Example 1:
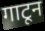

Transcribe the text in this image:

गाटून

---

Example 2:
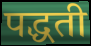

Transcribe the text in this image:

पद्धती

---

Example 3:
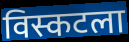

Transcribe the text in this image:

विस्कटला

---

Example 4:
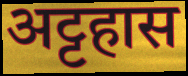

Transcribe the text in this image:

अट्टहास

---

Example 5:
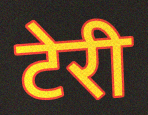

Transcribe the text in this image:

टेरी